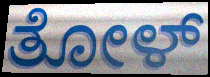
ತೋಳ್